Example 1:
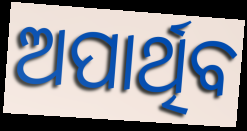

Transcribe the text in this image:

ଅପାର୍ଥିବ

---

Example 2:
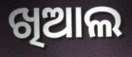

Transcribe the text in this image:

ଖିଆଲ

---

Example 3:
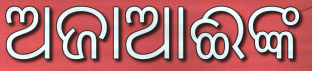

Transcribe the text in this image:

ଅଜାଆଈଙ୍କ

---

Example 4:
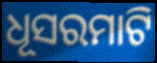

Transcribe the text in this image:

ଧୂସରମାଟି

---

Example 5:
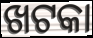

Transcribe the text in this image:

ଖଟକା